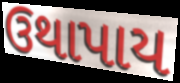
ઉથાપાય